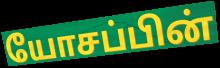
யோசப்பின்